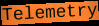
Telemetry